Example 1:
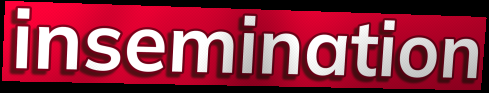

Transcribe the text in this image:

insemination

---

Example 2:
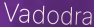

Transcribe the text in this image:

Vadodra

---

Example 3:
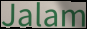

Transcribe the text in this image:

Jalam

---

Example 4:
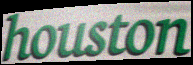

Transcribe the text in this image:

houston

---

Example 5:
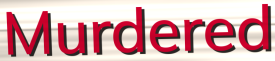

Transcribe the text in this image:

Murdered